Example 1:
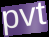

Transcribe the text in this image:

pvt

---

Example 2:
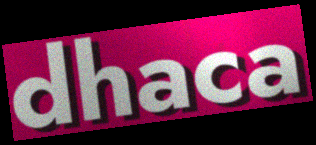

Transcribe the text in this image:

dhaca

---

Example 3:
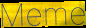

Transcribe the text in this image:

Meme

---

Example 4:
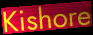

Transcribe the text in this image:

Kishore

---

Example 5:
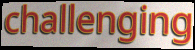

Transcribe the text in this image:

challenging